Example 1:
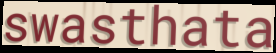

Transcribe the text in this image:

swasthata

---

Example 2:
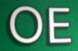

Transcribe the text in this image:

OE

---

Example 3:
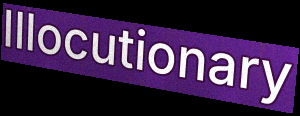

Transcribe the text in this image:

Illocutionary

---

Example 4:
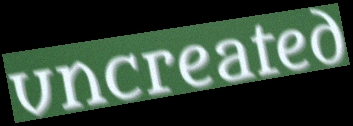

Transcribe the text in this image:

uncreated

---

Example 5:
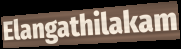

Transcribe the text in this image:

Elangathilakam